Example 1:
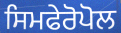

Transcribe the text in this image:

ਸਿਮਫੇਰੋਪੋਲ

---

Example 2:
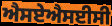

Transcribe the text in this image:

ਐਸਏਐਸਈਸੀ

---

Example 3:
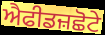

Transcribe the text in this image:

ਐਫੀਡਜ਼ਛੋਟੇ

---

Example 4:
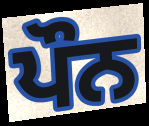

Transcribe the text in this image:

ਪੌਨ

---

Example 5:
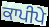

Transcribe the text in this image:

ਕਾਪੀਪੇ